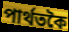
পাৰ্থতকৈ